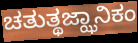
ಚತುತ್ಥಜ್ಝಾನಿಕಂ